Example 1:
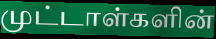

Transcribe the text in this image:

முட்டாள்களின்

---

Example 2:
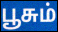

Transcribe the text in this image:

பூசும்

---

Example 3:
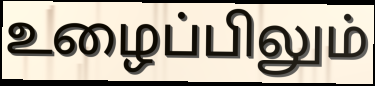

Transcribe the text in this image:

உழைப்பிலும்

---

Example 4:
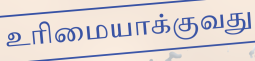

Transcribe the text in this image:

உரிமையாக்குவது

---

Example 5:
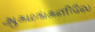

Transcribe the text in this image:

ஆகமங்களிலே